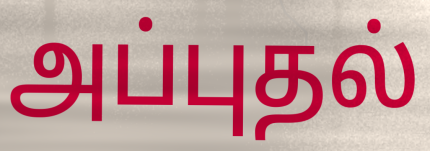
அப்புதல்